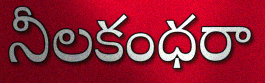
నీలకంధరా